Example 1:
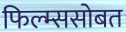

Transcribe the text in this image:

फिल्म्ससोबत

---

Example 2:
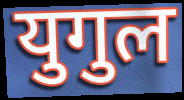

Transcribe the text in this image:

युगुल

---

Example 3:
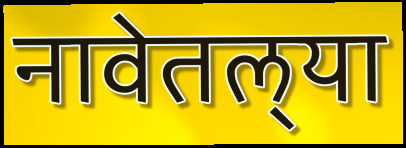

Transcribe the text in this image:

नावेतल्या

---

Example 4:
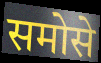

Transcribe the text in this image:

समोसे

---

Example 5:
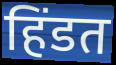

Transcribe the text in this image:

हिंडत